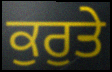
ਕੁਰੁਤੇ